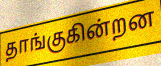
தாங்குகின்றன